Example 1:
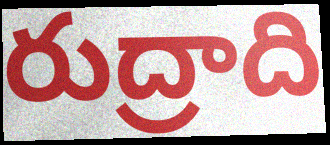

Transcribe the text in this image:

రుద్రాది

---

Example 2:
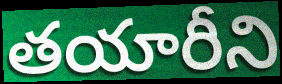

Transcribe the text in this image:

తయారీని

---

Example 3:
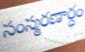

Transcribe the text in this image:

సంస్మరణార్ధం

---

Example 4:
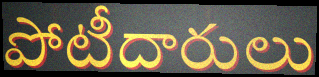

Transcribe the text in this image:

పోటీదారులు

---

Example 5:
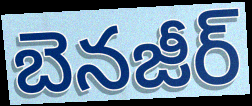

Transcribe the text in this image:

బెనజీర్